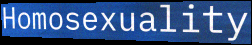
Homosexuality